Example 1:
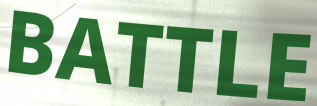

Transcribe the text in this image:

BATTLE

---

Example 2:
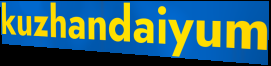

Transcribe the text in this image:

kuzhandaiyum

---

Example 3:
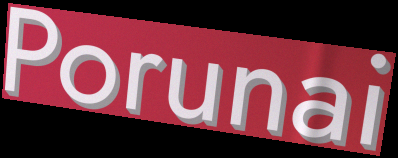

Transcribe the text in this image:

Porunai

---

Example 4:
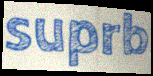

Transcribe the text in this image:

suprb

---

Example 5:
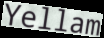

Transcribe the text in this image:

Yellam